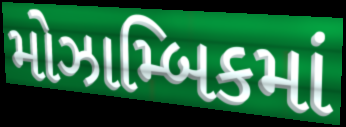
મોઝામ્બિકમાં